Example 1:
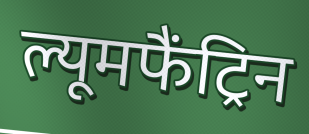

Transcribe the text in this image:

ल्यूमफैंट्रिन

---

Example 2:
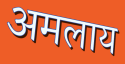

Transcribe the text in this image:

अमलाय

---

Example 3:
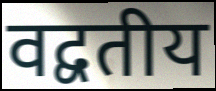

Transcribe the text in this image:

वद्वतीय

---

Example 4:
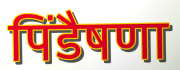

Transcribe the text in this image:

पिंडैषणा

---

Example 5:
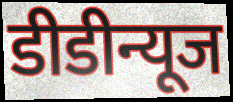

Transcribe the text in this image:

डीडीन्यूज